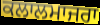
ਕਲਾਲਮਾਜਰਾ